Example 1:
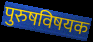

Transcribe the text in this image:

पुरुषविषयक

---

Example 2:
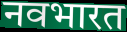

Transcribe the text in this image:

नवभारत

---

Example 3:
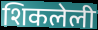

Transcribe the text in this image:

शिकलेली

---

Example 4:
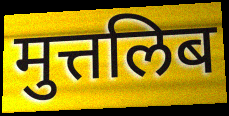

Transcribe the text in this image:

मुत्तलिब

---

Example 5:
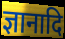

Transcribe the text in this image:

ज्ञानादि